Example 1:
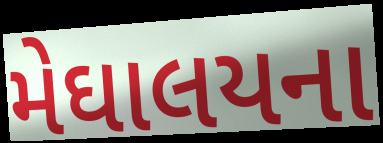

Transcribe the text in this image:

મેઘાલયના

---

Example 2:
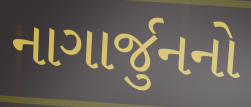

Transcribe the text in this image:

નાગાર્જુનનો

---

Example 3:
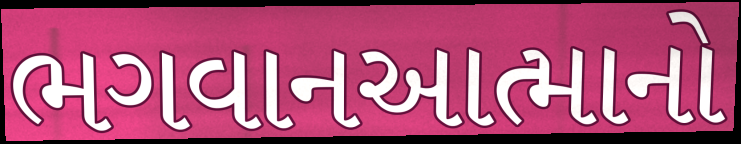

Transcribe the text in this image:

ભગવાનઆત્માનો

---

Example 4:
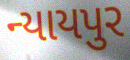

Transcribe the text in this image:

ન્યાયપુર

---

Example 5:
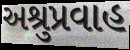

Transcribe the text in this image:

અશ્રુપ્રવાહ